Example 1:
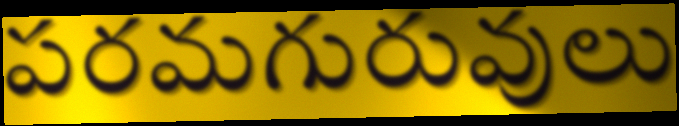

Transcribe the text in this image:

పరమగురువులు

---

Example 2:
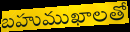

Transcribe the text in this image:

బహుముఖాలతో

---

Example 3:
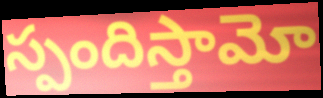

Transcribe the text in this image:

స్పందిస్తామో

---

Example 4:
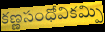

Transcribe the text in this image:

కణ్ణసంధోవికమ్పి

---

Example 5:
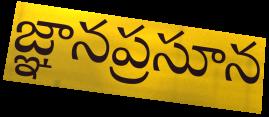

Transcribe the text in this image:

జ్ఞానప్రసూన